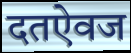
दतऐवज